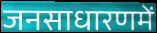
जनसाधारणमें